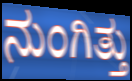
ನುಂಗಿತ್ತು